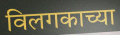
विलगकाच्या